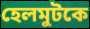
হেলমুটকে